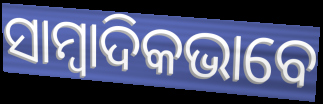
ସାମ୍ୱାଦିକଭାବେ